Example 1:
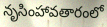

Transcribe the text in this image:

నృసింహావతారంలో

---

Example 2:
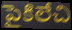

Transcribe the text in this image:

పైకిలేచి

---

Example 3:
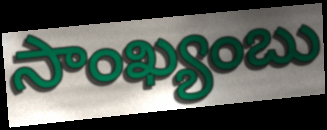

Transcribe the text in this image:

సాంఖ్యంబు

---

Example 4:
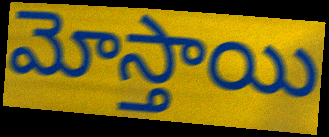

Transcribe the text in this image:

మోస్తాయి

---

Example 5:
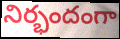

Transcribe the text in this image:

నిర్భందంగా